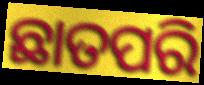
ଛାତପରି